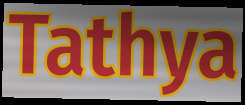
Tathya